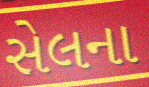
સેલના